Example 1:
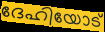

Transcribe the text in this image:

ദേഹിയോട്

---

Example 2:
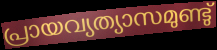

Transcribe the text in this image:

പ്രായവ്യത്യാസമുണ്ടു്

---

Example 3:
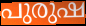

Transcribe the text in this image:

പുരുഷ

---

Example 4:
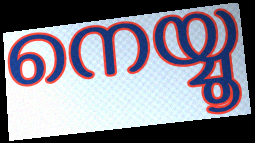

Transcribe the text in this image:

നെയ്യൂ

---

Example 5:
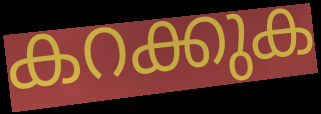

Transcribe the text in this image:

കറക്കുക